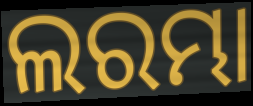
ଲରମ୍ଭା